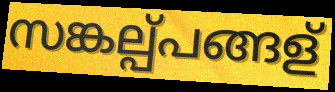
സങ്കല്പ്പങ്ങള്